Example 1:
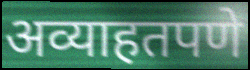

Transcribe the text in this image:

अव्याहतपणे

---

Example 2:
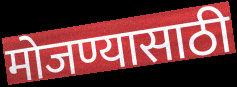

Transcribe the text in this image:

मोजण्यासाठी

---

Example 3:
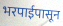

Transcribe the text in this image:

भरपाईपासून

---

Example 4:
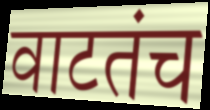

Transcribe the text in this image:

वाटतंच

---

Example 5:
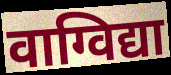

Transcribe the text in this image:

वाग्विद्या